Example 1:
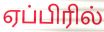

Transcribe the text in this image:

ஏப்பிரில்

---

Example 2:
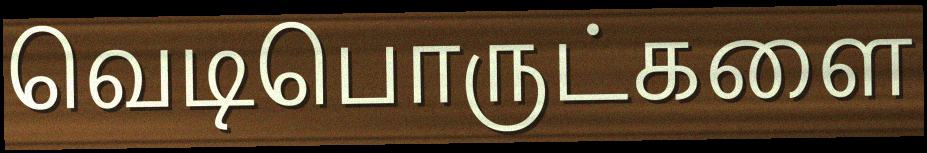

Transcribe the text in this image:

வெடிபொருட்களை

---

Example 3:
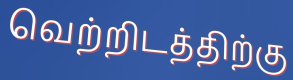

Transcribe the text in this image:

வெற்றிடத்திற்கு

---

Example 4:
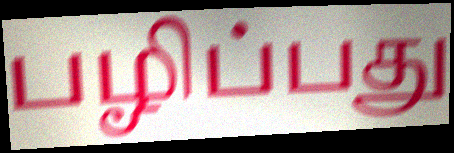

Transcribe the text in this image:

பழிப்பது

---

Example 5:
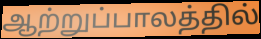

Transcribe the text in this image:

ஆற்றுப்பாலத்தில்